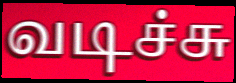
வடிச்சு